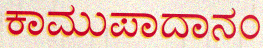
ಕಾಮುಪಾದಾನಂ